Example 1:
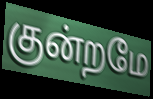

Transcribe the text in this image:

குன்றமே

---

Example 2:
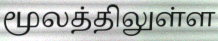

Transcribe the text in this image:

மூலத்திலுள்ள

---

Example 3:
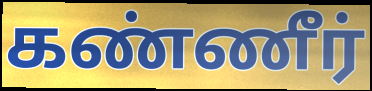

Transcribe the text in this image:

கண்ணீர்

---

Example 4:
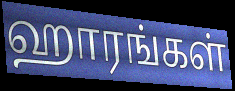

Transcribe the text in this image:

ஹாரங்கள்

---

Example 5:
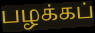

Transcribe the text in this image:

பழக்கப்